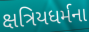
ક્ષત્રિયધર્મના